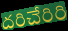
దరిచేరిరి